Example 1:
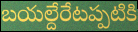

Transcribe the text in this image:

బయల్దేరేటప్పటికి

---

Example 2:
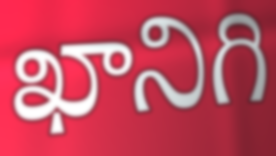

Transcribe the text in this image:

ఖానిగి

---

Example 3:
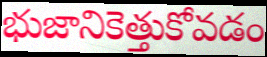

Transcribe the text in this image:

భుజానికెత్తుకోవడం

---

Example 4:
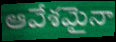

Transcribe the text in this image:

ఆవేశమైనా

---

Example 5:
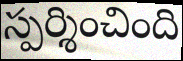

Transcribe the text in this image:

స్పర్శించింది